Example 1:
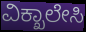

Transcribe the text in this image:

ವಿಕ್ಖಾಲೇಸಿ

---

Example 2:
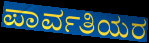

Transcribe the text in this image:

ಪಾರ್ವತಿಯರ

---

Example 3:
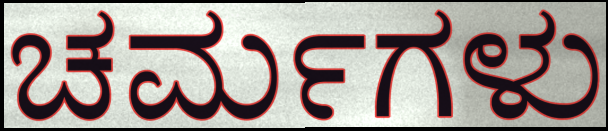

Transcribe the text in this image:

ಚರ್ಮಗಳು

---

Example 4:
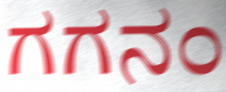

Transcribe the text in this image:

ಗಗನಂ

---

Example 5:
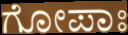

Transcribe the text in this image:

ಗೋಪಾಃ